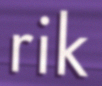
rik